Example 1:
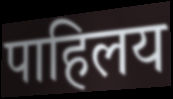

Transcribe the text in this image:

पाहिलय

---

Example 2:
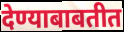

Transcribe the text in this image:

देण्याबाबतीत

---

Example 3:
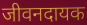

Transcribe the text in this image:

जीवनदायक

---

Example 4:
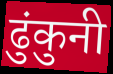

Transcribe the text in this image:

ढुंकुनी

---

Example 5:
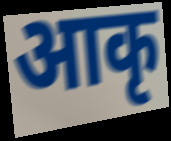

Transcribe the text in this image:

आकृ